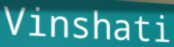
Vinshati